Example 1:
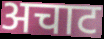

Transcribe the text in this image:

अचाट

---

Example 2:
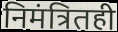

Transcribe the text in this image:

निमंत्रितही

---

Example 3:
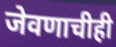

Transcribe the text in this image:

जेवणाचीही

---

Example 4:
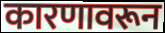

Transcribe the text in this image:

कारणावरून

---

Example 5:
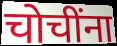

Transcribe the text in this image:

चोचींना